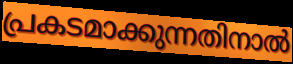
പ്രകടമാക്കുന്നതിനാൽ